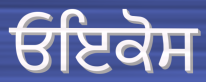
ਓਇਕੋਸ